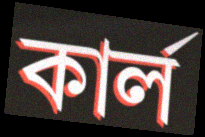
কাৰ্ল